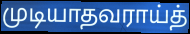
முடியாதவராய்த்